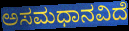
ಅಸಮಧಾನವಿದೆ